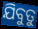
ଯିବୁତୁ